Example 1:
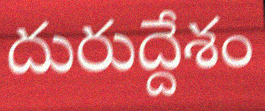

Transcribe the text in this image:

దురుద్దేశం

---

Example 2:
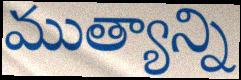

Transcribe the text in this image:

ముత్యాన్ని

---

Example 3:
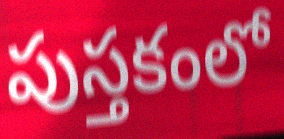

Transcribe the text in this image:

పుస్తకంలో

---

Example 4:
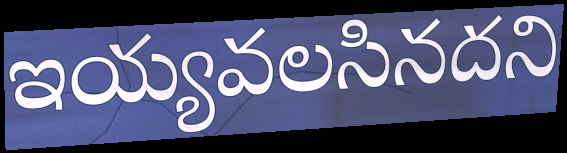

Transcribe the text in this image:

ఇయ్యవలసినదని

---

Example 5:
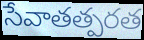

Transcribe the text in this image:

సేవాతత్పరత